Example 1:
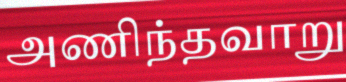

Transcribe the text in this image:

அணிந்தவாறு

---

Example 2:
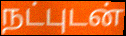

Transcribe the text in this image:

நட்புடன்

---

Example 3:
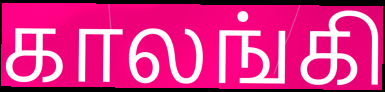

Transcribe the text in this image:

காலங்கி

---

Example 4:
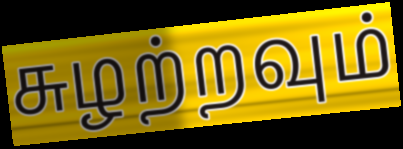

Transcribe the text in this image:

சுழற்றவும்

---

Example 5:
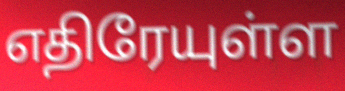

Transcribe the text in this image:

எதிரேயுள்ள